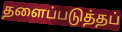
தளைப்படுத்தப்